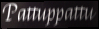
Pattuppattu